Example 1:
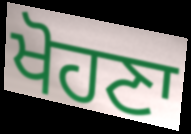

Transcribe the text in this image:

ਖੋਹਣਾ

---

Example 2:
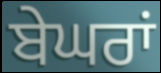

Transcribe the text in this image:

ਬੇਘਰਾਂ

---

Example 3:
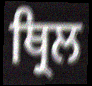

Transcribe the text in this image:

ਥ੍ਰਿਲ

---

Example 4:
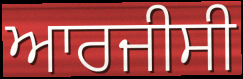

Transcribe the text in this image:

ਆਰਜੀਸੀ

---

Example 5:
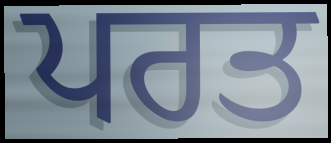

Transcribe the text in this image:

ਪਰਤ